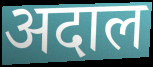
अदाल